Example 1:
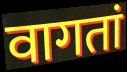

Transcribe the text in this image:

वागतां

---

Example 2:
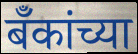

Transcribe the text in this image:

बॅँकांच्या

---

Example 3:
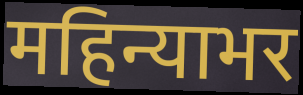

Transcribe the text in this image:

महिन्याभर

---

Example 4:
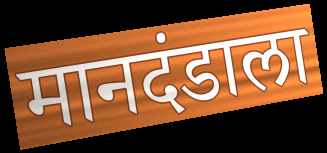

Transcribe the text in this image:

मानदंडाला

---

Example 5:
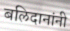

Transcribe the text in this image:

बलिदानांनी